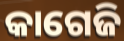
କାଗେଜି